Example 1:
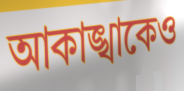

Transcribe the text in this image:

আকাঙ্খাকেও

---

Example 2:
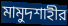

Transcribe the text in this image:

মামুদশাহীর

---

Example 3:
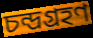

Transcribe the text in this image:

চন্দ্রগ্রহণ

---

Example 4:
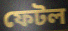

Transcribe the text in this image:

ফেটল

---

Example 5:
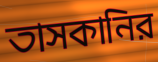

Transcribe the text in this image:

তাসকানির